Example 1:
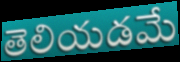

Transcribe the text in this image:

తెలియడమే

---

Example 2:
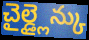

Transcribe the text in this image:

చైల్డ్లైన్కు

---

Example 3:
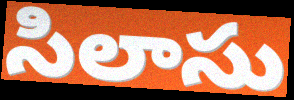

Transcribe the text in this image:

సిలాసు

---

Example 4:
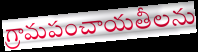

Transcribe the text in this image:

గ్రామపంచాయతీలను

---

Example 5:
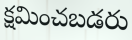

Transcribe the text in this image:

క్షమించబడరు